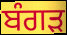
ਬੰਗੜ